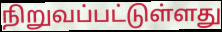
நிறுவப்பட்டுள்ளது